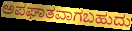
ಅಪಘಾತವಾಗಬಹುದು